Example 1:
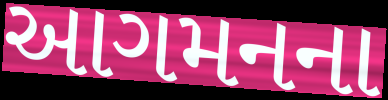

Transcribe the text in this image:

આગમનના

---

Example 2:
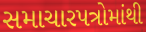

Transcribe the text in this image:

સમાચારપત્રોમાંથી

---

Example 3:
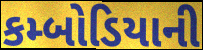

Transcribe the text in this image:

કમ્બોડિયાની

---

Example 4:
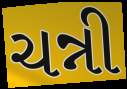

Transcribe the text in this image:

ચન્ની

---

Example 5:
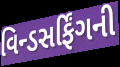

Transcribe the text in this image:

વિન્ડસર્ફિંગની